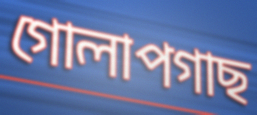
গোলাপগাছ